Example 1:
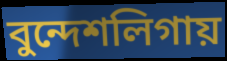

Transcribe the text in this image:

বুন্দেশলিগায়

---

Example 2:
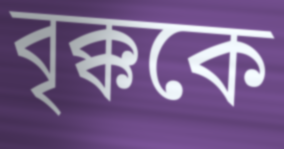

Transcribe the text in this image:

বৃক্ককে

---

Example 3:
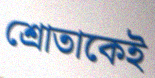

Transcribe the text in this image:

শ্রোতাকেই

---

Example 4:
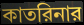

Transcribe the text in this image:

কাতরিনার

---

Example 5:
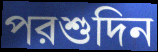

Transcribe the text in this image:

পরশুদিন